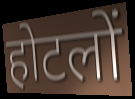
होटलों